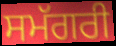
ਸਮੱਗਰੀ